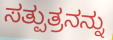
ಸತ್ಪುತ್ರನನ್ನು